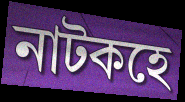
নাটকহে